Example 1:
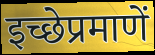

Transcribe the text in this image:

इच्छेप्रमाणें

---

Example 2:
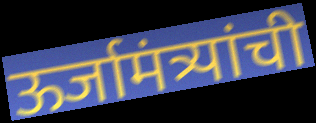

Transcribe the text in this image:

ऊर्जामंत्र्यांची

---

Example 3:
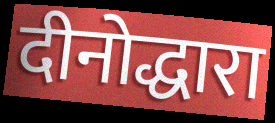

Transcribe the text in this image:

दीनोद्धारा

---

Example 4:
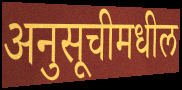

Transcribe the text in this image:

अनुसूचीमधील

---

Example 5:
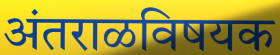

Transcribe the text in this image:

अंतराळविषयक